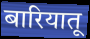
बारियातू